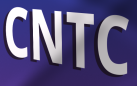
CNTC